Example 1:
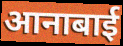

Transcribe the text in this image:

आनाबाई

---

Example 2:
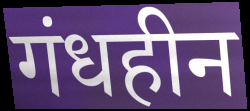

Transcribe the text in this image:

गंधहीन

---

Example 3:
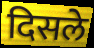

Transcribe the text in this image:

दिसले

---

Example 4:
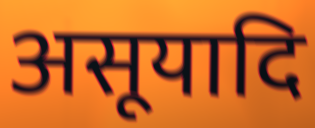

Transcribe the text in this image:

असूयादि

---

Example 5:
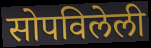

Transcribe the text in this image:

सोपविलेली